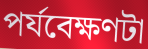
পর্যবেক্ষণটা